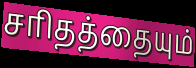
சரிதத்தையும்